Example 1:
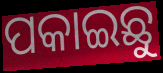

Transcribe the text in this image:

ପକାଇଛୁ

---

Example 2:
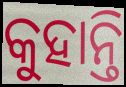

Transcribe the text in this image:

କୁହାନ୍ତି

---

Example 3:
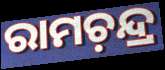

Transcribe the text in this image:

ରାମଚ଼ନ୍ଦ୍ର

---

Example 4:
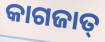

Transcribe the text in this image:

କାଗଜାତ୍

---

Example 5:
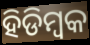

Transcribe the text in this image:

ହିଡିମ୍ବକ